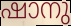
ഷാനു